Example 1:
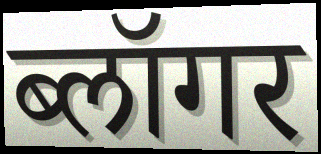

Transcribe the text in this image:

ब्लॉगर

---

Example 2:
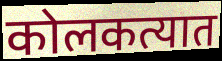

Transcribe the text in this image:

कोलकत्यात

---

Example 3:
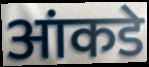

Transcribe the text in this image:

आंकडे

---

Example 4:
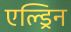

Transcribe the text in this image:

एल्ड्रिन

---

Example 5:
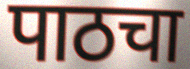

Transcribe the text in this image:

पाठचा